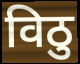
विठु